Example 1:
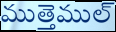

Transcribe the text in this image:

ముత్తెముల్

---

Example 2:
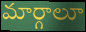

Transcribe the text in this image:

మార్గాలూ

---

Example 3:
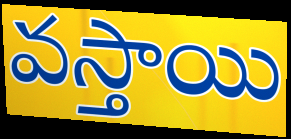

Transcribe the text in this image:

వస్తాయి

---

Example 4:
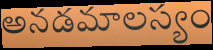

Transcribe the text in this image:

అనడమాలస్యం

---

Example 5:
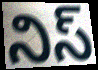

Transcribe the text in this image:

నిస్